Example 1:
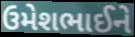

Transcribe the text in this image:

ઉમેશભાઈને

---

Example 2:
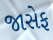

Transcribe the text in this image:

જાસેફ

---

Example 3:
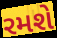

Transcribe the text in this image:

રમશે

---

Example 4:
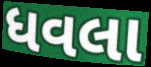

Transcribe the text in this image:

ધવલા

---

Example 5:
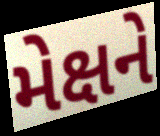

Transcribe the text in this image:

મેક્ષને